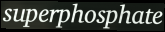
superphosphate